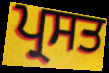
ਪ੍ਰਸਤ